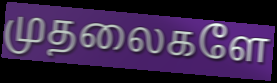
முதலைகளே